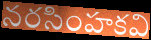
నరసింహకవి